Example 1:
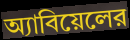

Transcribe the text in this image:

অ্যাবিয়েলের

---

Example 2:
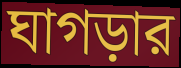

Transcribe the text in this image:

ঘাগড়ার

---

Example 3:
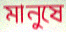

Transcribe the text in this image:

মানুষে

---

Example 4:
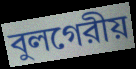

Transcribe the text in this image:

বুলগেরীয়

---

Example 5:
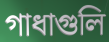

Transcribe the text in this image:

গাধাগুলি